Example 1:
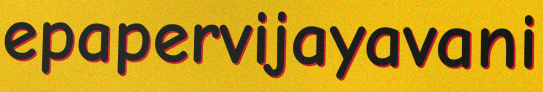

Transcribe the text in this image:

epapervijayavani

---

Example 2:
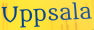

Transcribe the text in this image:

Uppsala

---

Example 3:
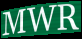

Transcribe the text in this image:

MWR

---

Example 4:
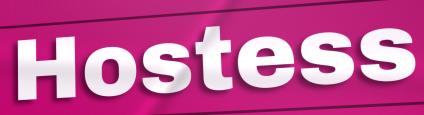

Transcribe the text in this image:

Hostess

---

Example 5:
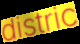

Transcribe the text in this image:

distric